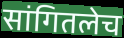
सांगितलेच